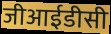
जीआईडीसी